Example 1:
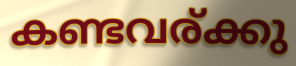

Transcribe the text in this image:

കണ്ടവര്ക്കു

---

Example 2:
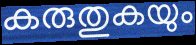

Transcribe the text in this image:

കരുതുകയും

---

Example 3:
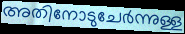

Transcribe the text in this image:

അതിനോടുചേർന്നുള്ള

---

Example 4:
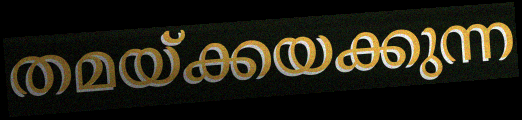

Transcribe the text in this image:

തമയ്ക്കയക്കുന്ന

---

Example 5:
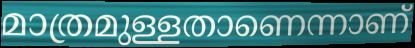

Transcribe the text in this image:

മാത്രമുള്ളതാണെന്നാണ്